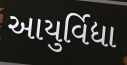
આયુર્વિદ્યા